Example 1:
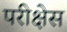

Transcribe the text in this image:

परीक्षेस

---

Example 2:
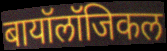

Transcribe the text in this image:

बायॉलॉजिकल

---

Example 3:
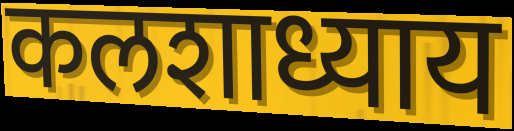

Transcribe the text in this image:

कलशाध्याय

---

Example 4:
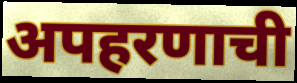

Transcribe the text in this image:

अपहरणाची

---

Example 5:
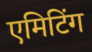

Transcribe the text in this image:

एमिटिंग